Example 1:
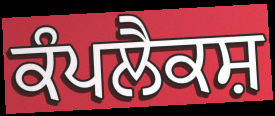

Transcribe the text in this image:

ਕੰਪਲੈਕਸ਼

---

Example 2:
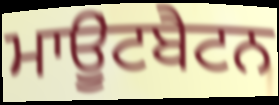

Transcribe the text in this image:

ਮਾਉੂਂਟਬੈਟਨ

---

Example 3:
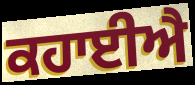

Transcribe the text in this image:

ਕਹਾਈਐ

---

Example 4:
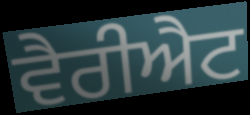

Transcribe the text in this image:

ਵੈਰੀਐਟ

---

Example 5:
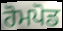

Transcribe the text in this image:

ਹੋਮਪੋਡ